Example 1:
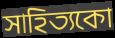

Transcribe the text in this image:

সাহিত্যকো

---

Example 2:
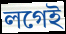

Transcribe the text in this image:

লগেই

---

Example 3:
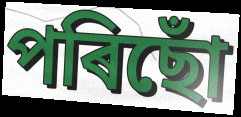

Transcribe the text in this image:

পৰিছোঁ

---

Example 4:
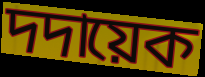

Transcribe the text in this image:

দদায়েক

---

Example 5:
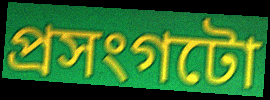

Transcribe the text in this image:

প্ৰসংগটো